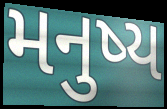
મનુષ્ય